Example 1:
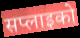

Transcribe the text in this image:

सप्लाइको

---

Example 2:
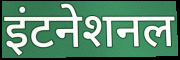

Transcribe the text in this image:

इंटनेशनल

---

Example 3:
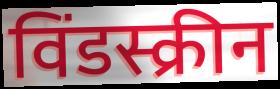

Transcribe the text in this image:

विंडस्क्रीन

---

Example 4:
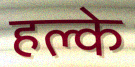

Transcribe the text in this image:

हल्‍के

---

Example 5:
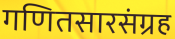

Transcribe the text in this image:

गणितसारसंग्रह